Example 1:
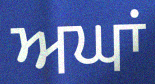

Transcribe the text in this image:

ਅਘਾਂ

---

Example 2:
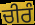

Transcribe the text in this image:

ਚੀਰੰ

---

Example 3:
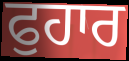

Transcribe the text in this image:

ਫੁਹਾਰ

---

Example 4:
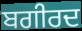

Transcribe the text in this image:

ਬਗੀਰਦ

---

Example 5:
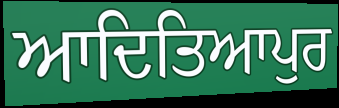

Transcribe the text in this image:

ਆਦਿਤਿਆਪੁਰ